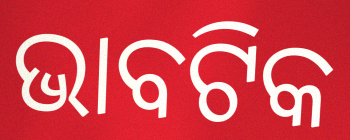
ଭାବଟିକ